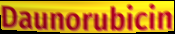
Daunorubicin